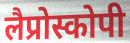
लैप्रोस्कोपी